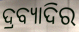
ଦ୍ରବ୍ୟାଦିର